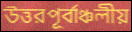
উত্তরপূর্বাঞ্চলীয়